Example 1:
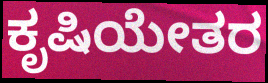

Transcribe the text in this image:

ಕೃಷಿಯೇತರ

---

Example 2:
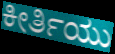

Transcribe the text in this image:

ಕೀರ್ತಿಯು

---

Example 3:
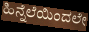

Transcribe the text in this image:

ಹಿನ್ನೆಲೆಯಿಂದಲೇ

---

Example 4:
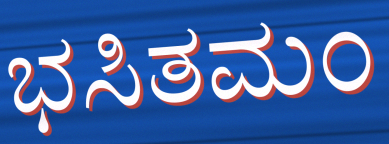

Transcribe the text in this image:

ಭಸಿತಮಂ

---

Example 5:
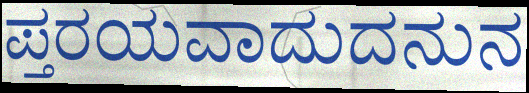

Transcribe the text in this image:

ಪ್ತರಯವಾದುದನುನ